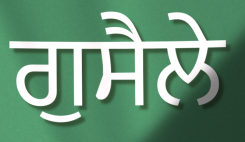
ਗੁਸੈਲੇ